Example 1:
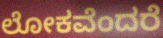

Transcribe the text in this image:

ಲೋಕವೆಂದರೆ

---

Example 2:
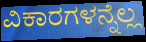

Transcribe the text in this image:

ವಿಕಾರಗಳನ್ನೆಲ್ಲ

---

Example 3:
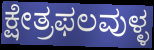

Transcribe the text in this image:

ಕ್ಷೇತ್ರಫಲವುಳ್ಳ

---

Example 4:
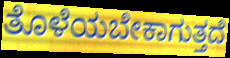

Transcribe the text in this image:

ತೊಳೆಯಬೇಕಾಗುತ್ತದೆ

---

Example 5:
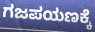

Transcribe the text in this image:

ಗಜಪಯಣಕ್ಕೆ